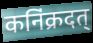
कनि॑क्रदत्